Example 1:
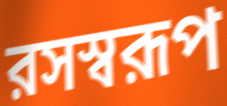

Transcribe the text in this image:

রসস্বরূপ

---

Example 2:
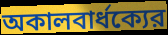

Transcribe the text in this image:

অকালবার্ধক্যের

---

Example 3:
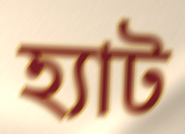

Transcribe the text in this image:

হ্যাট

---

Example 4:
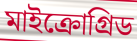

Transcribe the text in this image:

মাইক্রোগ্রিড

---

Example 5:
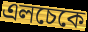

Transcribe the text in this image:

এলচেকে